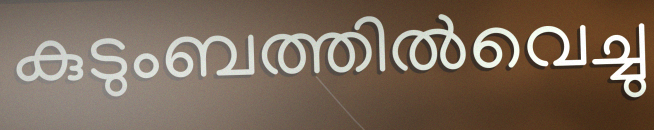
കുടുംബത്തിൽവെച്ചു